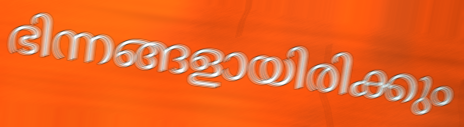
ഭിന്നങ്ങളായിരിക്കും